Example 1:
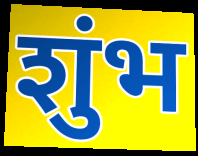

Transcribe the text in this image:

शुंभ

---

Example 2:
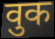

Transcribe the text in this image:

वुक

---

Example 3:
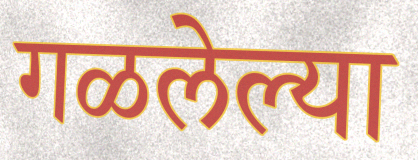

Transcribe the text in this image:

गळलेल्या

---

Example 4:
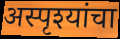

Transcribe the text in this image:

अस्पृश्यांचा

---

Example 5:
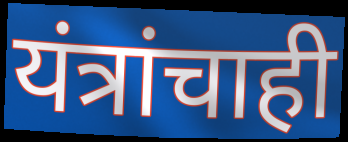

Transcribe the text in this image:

यंत्रांचाही